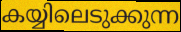
കയ്യിലെടുക്കുന്ന